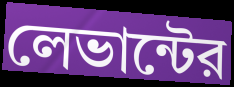
লেভান্টের